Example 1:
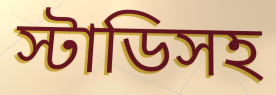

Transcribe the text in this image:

স্টাডিসহ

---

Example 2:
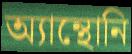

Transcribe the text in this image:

অ্যান্থোনি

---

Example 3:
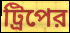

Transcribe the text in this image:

ট্রিপের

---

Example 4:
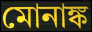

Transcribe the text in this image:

মোনাঙ্ক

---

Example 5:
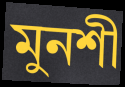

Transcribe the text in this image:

মুনশী